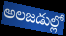
అలజడుల్లో